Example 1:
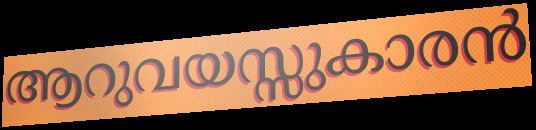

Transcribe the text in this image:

ആറുവയസ്സുകാരൻ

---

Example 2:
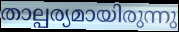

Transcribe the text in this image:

താല്പര്യമായിരുന്നു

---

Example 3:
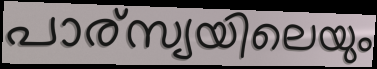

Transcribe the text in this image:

പാര്സ്യയിലെയും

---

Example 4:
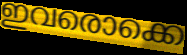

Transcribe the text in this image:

ഇവരൊക്കെ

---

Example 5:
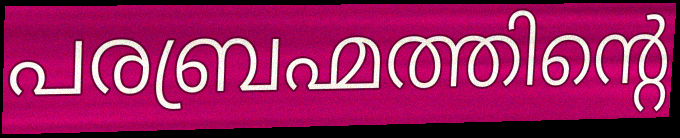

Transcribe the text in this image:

പരബ്രഹ്മത്തിന്റെ